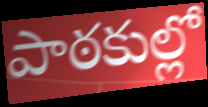
పాఠకుల్లో